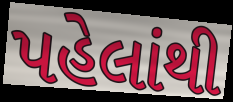
પહેલાંથી